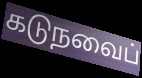
கடுநவைப்